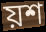
য়শ